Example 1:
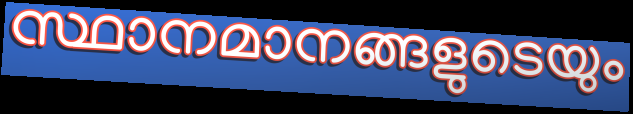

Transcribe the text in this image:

സ്ഥാനമാനങ്ങളുടെയും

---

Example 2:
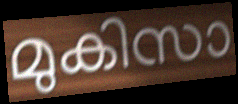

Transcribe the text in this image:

മുകിസാ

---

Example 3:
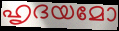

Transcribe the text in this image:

ഹൃദയമോ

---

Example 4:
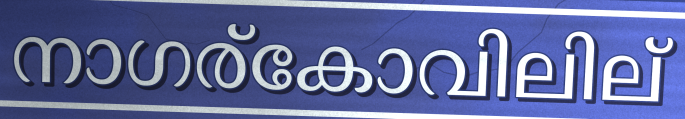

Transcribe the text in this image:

നാഗര്കോവിലില്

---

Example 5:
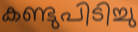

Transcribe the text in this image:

കണ്ടുപിടിച്ചു